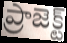
ప్రాజెక్ట్